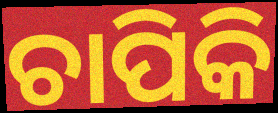
ଚାପିକି